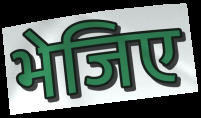
भेजिए